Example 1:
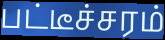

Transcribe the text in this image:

பட்டீச்சரம்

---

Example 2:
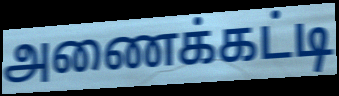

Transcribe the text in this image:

அணைக்கட்டி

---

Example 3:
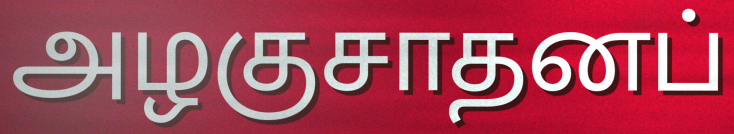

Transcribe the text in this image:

அழகுசாதனப்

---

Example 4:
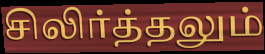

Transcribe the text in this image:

சிலிர்த்தலும்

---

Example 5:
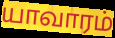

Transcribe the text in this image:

யாவாரம்